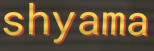
shyama